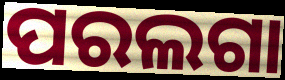
ପରଲଗା